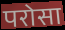
परोसा